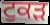
ਟੁਕੜ